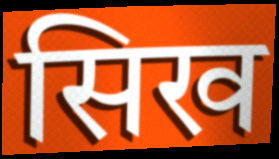
सिख